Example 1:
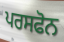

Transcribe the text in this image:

ਪਰਸਫੋਨ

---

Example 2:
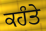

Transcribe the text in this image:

ਕਹੰਤੇ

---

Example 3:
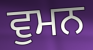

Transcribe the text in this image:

ਵੁਮਨ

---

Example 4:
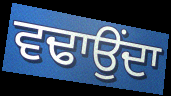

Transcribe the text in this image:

ਵਢਾਉਂਦਾ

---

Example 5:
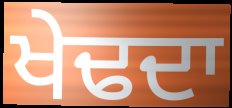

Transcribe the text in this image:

ਖੇਢਦਾ